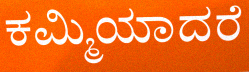
ಕಮ್ಮಿಯಾದರೆ